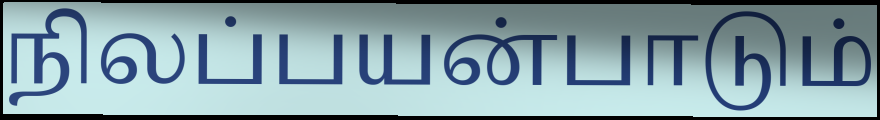
நிலப்பயன்பாடும்